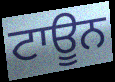
ਟਾਊਨ